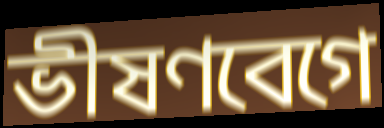
ভীষণবেগে